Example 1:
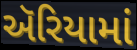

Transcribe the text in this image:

ઍરિયામાં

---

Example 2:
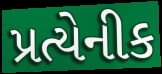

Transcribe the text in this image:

પ્રત્યેનીક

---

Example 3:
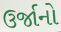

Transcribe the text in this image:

ઉર્જાનો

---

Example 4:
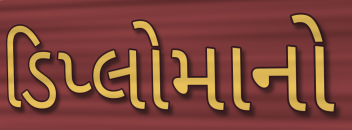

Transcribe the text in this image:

ડિપ્લોમાનો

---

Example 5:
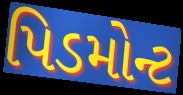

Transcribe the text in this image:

પિડમોન્ટ